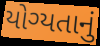
યોગ્યતાનું